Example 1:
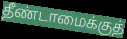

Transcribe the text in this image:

தீண்டாமைக்குத்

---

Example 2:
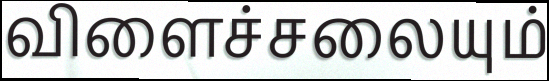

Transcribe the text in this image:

விளைச்சலையும்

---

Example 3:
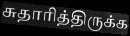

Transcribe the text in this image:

சுதாரித்திருக்க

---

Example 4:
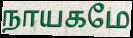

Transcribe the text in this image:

நாயகமே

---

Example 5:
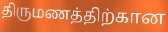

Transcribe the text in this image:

திருமணத்திற்கான